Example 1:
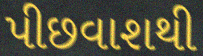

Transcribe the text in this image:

પીછવાશથી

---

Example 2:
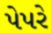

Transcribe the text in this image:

પેપરે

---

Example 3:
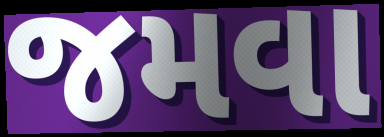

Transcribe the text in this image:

જમવા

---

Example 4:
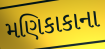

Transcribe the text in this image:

મણિકાકાના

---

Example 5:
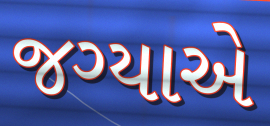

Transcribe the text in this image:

જગ્યાએ